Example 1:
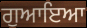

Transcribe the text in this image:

ਗੁਆਇਆ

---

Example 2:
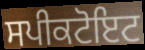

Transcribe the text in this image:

ਸਪੀਕਟੋਇਟ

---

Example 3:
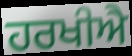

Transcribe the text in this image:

ਹਰਖੀਐ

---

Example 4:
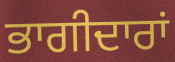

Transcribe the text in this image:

ਭਾਗੀਦਾਰਾਂ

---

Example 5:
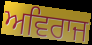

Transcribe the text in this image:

ਅਵਿਰਾਜ